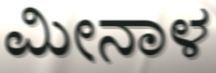
ಮೀನಾಳ